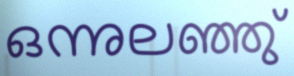
ഒന്നുലഞ്ഞു്